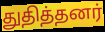
துதித்தனர்